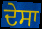
ਦੇਸਾ